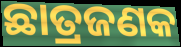
ଛାତ୍ରଜଣକ